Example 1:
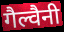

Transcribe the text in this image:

गैल्वैनी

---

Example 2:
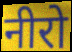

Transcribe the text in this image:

नीरो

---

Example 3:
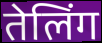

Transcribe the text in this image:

तेलिंग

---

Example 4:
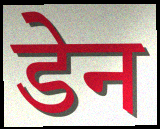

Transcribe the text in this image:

डेन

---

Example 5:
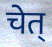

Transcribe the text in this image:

चेत्